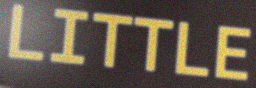
LITTLE